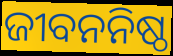
ଜୀବନନିଷ୍ଠ